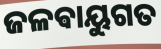
ଜଳଵାୟୁଗତ